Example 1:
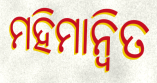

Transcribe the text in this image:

ମହିମାନ୍ୱିତ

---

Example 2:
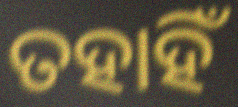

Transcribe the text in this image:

ତହାହିଁ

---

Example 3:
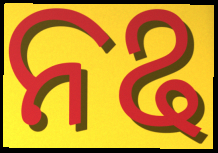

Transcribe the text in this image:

ନୡ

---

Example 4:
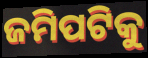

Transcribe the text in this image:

ଜମିପଟିକୁ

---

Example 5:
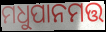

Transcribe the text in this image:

ମଧୁପାନମତ୍ତ